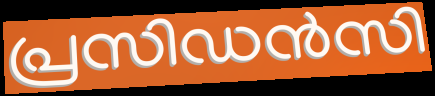
പ്രസിഡൻസി